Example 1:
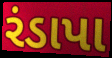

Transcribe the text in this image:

રંડાપા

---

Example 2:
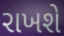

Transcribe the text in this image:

રાખશે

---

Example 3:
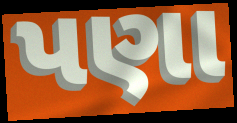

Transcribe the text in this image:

પણા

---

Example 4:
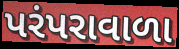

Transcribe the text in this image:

પરંપરાવાળા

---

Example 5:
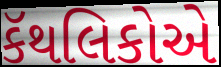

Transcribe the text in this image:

કૅથલિકોએ